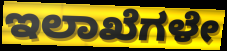
ಇಲಾಖೆಗಳೇ